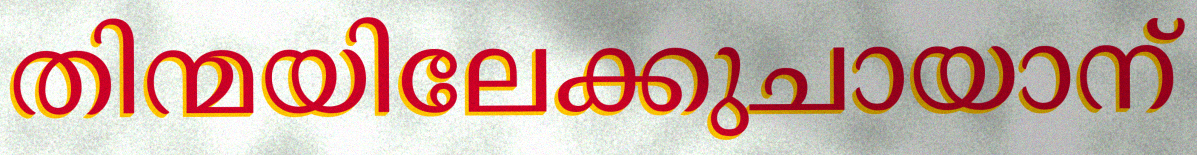
തിന്മയിലേക്കുചായാന്